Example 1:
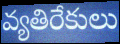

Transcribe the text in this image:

వ్యతిరేకులు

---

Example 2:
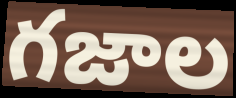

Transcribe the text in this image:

గజాల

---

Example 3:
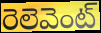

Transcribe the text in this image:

రెలెవెంట్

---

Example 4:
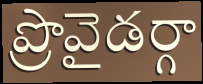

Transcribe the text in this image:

ప్రొవైడర్గా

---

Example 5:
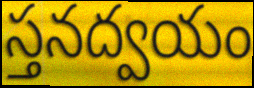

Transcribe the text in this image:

స్తనద్వయం